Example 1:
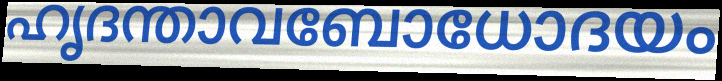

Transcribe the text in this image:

ഹൃദന്താവബോധോദയം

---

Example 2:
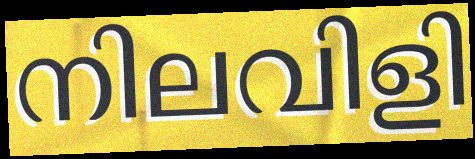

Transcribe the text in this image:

നിലവിളി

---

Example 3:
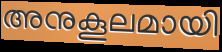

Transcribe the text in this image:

അനുകൂലമായി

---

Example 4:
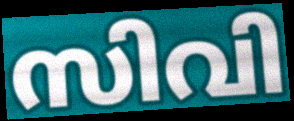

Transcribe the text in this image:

സിവി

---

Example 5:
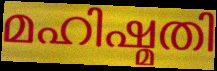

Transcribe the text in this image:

മഹിഷ്മതി